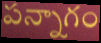
పన్నాగం